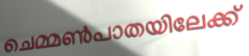
ചെമ്മൺപാതയിലേക്ക്